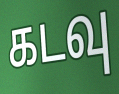
கடவு